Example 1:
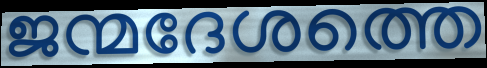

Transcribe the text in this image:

ജന്മദേശത്തെ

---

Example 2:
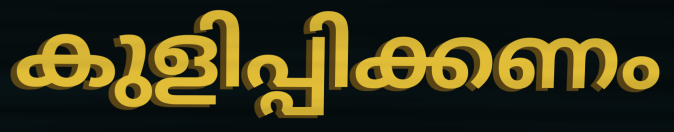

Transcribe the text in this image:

കുളിപ്പിക്കണം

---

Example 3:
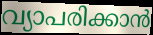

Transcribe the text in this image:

വ്യാപരിക്കാൻ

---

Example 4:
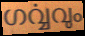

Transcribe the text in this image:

ഗൎവ്വവും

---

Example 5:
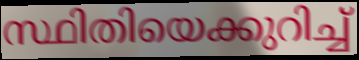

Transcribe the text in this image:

സ്ഥിതിയെക്കുറിച്ച്